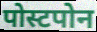
पोस्टपोन